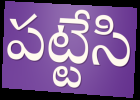
పట్టేసి